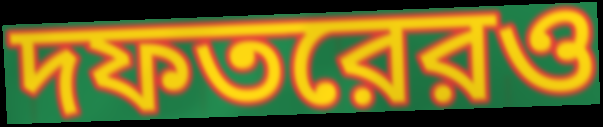
দফতরেরও